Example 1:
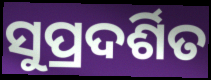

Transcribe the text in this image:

ସୁପ୍ରଦର୍ଶିତ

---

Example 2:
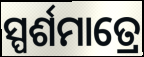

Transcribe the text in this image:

ସ୍ପର୍ଶମାତ୍ରେ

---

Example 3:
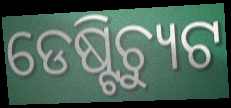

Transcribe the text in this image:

ଡେଷ୍ଟିଚ୍ୟୁଟ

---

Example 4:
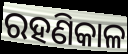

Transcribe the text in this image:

ରହଣିକାଳ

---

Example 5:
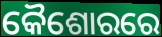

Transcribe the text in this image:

କୈଶୋରରେ